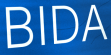
BIDA